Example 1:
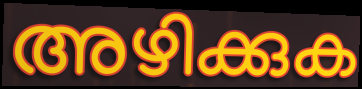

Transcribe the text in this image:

അഴിക്കുക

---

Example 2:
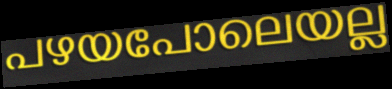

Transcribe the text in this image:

പഴയപോലെയല്ല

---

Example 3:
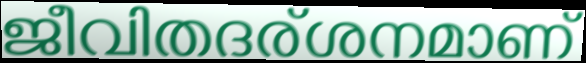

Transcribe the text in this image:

ജീവിതദര്ശനമാണ്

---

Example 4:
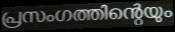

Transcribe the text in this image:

പ്രസംഗത്തിന്റെയും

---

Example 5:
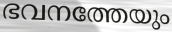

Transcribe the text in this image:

ഭവനത്തേയും